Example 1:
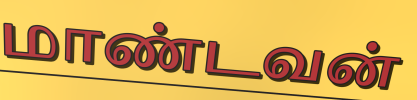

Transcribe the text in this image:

மாண்டவன்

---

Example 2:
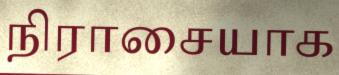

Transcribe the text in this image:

நிராசையாக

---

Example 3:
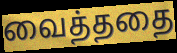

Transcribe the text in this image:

வைத்ததை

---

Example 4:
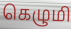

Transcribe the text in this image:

கெழுமி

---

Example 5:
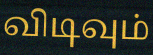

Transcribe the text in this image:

விடிவும்